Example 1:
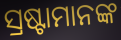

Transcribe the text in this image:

ସ୍ରଷ୍ଟାମାନଙ୍କ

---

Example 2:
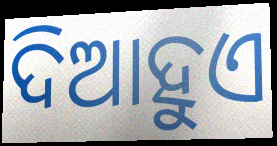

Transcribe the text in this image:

ଦିଆହୁଏ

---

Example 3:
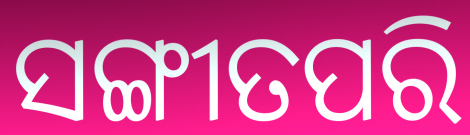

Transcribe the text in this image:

ସଙ୍ଗୀତପରି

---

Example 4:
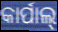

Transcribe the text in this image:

କାର୍ପାଲ୍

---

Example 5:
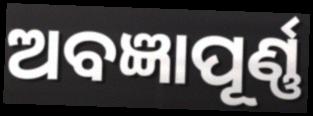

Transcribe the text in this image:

ଅବଜ୍ଞାପୂର୍ଣ୍ଣ